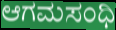
ಆಗಮಸಂಧಿ